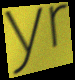
yr